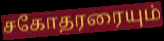
சகோதரரையும்